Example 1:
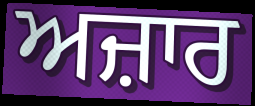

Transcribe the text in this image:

ਅਜ਼ਾਰ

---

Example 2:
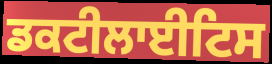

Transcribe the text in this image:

ਡਕਟੀਲਾਈਟਿਸ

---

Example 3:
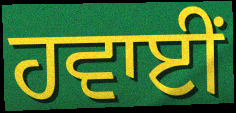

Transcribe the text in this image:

ਹਵਾਈਂ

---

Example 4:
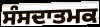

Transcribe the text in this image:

ਸੰਸਦਾਤਮਕ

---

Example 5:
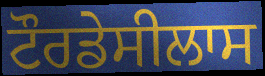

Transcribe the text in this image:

ਟੌਰਡੇਸੀਲਾਸ